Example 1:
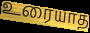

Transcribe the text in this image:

உரையாத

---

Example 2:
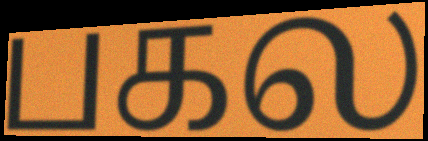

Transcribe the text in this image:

பகல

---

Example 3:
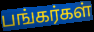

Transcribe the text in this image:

பங்கர்கள்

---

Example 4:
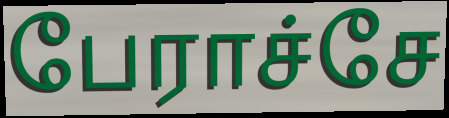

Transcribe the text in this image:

பேராச்சே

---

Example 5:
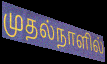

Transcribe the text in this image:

முதல்நாளில்